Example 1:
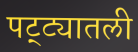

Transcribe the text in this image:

पट्ट्यातली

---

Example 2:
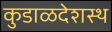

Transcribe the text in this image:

कुडाळदेशस्थ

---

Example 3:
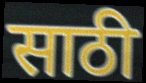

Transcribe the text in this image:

साठी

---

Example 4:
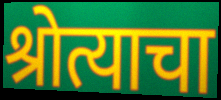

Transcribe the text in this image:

श्रोत्याचा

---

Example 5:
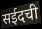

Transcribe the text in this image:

सईदची